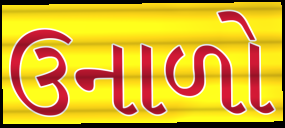
ઉનાળો